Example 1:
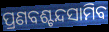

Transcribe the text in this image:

ପ୍ରଣବଶ୍ଚନ୍ଦସାମିବ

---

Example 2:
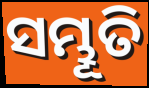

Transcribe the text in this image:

ସମ୍ଭୂତି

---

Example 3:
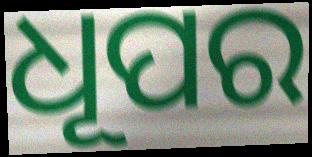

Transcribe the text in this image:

ଧୂପର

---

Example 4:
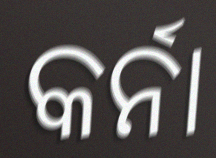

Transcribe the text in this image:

କର୍ନା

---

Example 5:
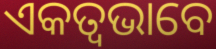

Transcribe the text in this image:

ଏକତ୍ଵଭାବେ